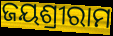
ଜୟଶ୍ରୀରାମ